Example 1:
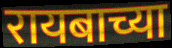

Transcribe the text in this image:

रायबाच्या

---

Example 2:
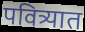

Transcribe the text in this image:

पवित्र्यात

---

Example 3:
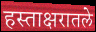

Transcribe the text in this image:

हस्ताक्षरातले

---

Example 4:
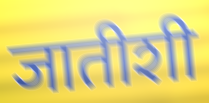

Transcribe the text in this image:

जातीशी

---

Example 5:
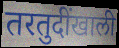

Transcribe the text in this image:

तरतुदींखाली